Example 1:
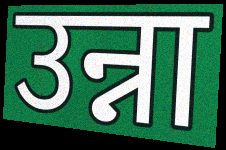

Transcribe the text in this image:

उन्ना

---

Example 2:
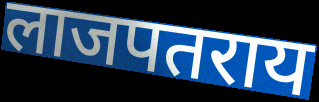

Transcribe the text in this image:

लाजपतराय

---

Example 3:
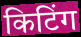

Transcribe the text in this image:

किटिंग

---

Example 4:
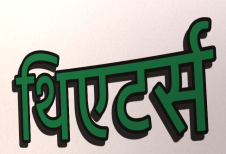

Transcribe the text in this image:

थिएटर्स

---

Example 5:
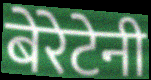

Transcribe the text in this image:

बेरेटेनी